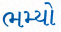
ભમ્યો